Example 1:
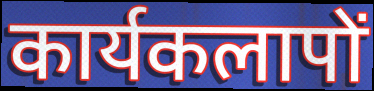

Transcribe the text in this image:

कार्यकलापों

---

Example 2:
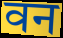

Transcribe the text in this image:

वन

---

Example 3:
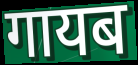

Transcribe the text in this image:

गायब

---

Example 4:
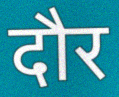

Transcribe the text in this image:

दौर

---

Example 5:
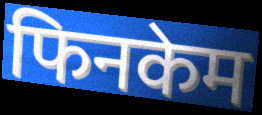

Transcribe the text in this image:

फिनकेम